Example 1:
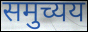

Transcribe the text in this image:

समुच्यय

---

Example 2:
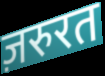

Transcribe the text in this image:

ज़रुरत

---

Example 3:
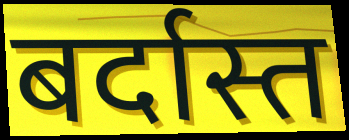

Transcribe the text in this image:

बर्दास्त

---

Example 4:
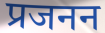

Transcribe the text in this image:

प्रजनन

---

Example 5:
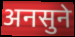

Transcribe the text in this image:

अनसुने